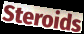
Steroids